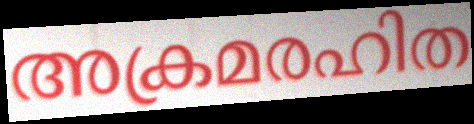
അക്രമരഹിത